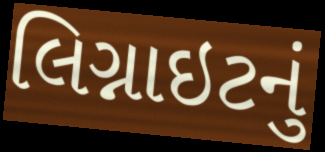
લિગ્નાઇટનું